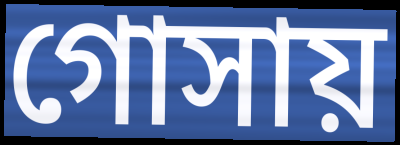
গোসায়